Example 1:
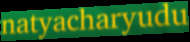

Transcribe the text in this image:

natyacharyudu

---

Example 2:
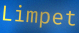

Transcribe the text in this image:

Limpet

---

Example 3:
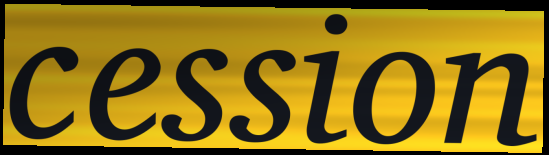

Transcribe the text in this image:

cession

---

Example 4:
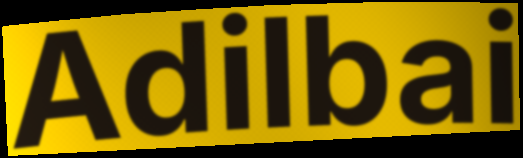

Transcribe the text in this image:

Adilbai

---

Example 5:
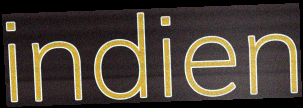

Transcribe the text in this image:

indien